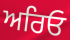
ਅਰਿਓ